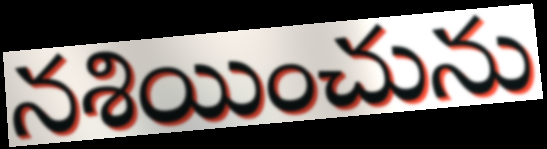
నశియించును